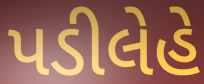
પડીલેહે